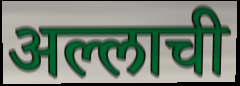
अल्लाची